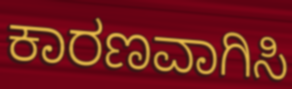
ಕಾರಣವಾಗಿಸಿ